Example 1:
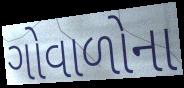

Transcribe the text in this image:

ગોવાળોના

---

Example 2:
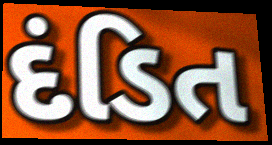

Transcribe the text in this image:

દંડિત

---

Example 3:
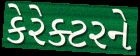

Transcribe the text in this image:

કેરેક્ટરને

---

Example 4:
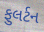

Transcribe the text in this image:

ફુલર્ટન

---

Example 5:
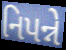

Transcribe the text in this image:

નિપન્ને